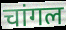
चांगल